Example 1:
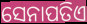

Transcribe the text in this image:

ସେନାପତିଏ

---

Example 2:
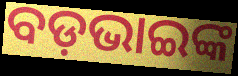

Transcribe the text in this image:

ବଡ଼ଭାଇଙ୍କ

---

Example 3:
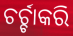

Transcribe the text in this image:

ଚର୍ଚ୍ଚାକରି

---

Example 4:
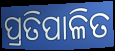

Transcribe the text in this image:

ପ୍ରତିପାଳିତ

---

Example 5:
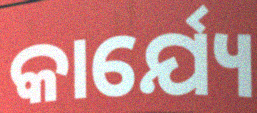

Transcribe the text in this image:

କାର୍ଯ୍ୟେ